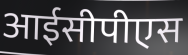
आईसीपीएस